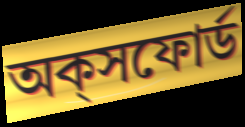
অক্‌সফোর্ড